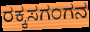
ರಕ್ಕಸಗಂಗನ